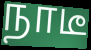
நாடீ